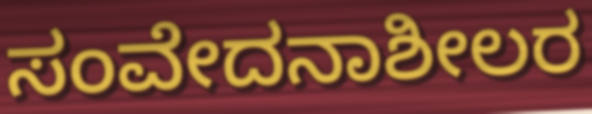
ಸಂವೇದನಾಶೀಲರ